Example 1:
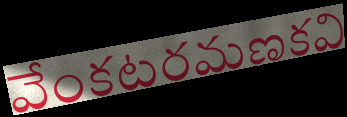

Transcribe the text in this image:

వేంకటరమణకవి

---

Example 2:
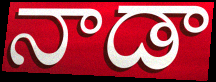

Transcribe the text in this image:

నాడా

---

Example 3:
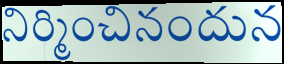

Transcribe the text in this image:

నిర్మించినందున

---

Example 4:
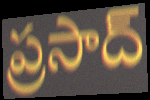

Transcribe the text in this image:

ప్రసాద్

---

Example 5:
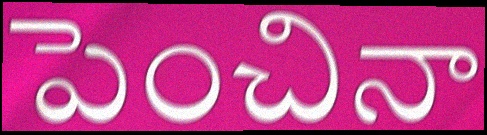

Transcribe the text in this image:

పెంచినా